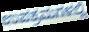
ಉಪಕ್ರಮಗಳಲ್ಲಿ